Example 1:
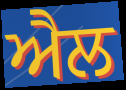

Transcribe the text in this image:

ਐਲ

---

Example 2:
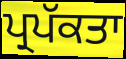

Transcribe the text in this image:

ਪ੍ਰਪੱਕਤਾ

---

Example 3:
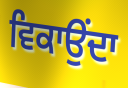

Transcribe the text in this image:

ਵਿਕਾਉੰਦਾ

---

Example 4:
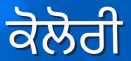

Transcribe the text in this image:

ਕੋਲੋਰੀ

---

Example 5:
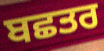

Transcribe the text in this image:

ਬਛਤਰ